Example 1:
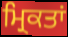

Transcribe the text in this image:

ਮ੍ਰਿਕਤਾਂ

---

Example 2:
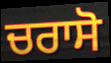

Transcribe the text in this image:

ਚਰਾਸੋ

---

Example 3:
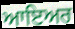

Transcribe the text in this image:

ਆਇਅਰ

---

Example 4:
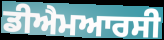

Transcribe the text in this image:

ਡੀਐਮਆਰਸੀ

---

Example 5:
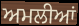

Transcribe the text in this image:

ਅਮਲੀਆਂ